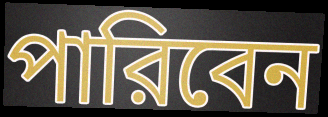
পারিবেন